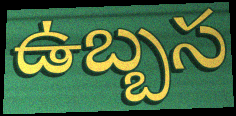
ఉబ్బస